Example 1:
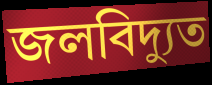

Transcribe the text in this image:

জলবিদ্যুত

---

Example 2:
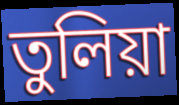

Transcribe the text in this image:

তুলিয়া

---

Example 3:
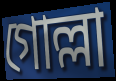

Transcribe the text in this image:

গোল্লা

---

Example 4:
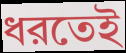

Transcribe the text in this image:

ধরতেই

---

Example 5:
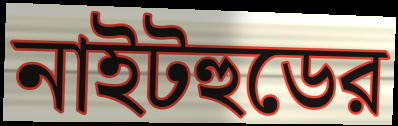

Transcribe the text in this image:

নাইটহুডের